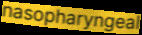
nasopharyngeal